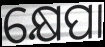
କ୍ଷେପା